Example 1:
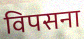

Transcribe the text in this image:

विपसना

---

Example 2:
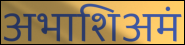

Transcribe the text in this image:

अभाशिअमं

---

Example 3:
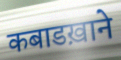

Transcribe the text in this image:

कबाडख़ाने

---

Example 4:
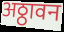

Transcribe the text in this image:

अठ्ठावन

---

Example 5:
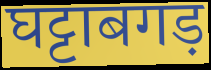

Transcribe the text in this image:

घट्टाबगड़